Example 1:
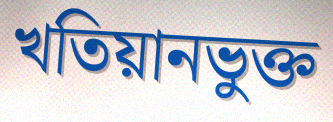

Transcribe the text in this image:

খতিয়ানভুক্ত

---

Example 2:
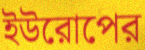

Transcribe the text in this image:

ইউরোপের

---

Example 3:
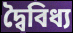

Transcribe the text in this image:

দ্বৈবিধ্য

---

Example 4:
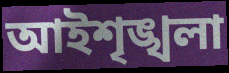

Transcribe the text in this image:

আইশৃঙ্খলা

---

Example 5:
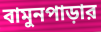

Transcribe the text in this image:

বামুনপাড়ার